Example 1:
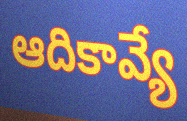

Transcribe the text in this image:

ఆదికావ్యే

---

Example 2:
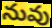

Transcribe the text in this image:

నువు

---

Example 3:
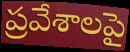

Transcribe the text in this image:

ప్రవేశాలపై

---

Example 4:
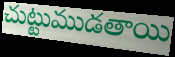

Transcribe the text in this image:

చుట్టుముడతాయి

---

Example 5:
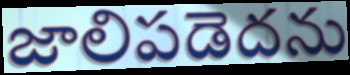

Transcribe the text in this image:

జాలిపడెదను